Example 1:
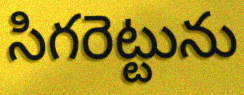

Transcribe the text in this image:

సిగరెట్టును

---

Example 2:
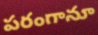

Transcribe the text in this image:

పరంగానూ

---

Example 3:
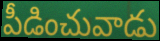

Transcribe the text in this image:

పీడించువాడు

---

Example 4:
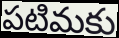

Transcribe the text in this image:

పటిమకు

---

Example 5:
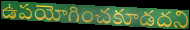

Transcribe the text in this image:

ఉపయోగించకూడదని